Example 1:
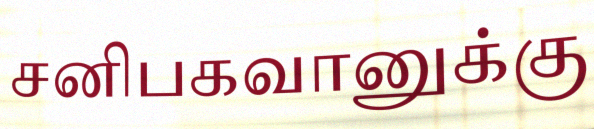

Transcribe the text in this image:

சனிபகவானுக்கு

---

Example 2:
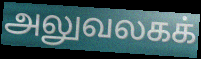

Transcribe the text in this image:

அலுவலகக்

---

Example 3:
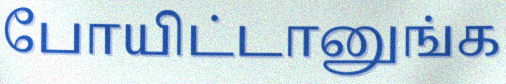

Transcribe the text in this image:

போயிட்டானுங்க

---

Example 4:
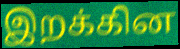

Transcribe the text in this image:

இறக்கின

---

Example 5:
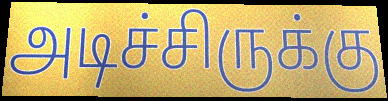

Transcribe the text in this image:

அடிச்சிருக்கு